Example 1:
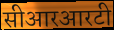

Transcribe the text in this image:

सीआरआरटी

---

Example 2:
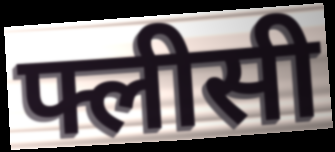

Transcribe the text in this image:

फ्लीसी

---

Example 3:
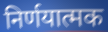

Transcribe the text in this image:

निर्णयात्मक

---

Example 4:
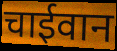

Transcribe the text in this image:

चाईवान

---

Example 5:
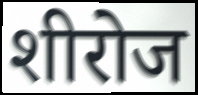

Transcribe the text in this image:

शीरोज